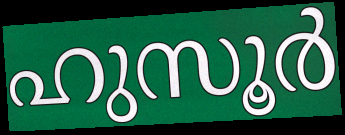
ഹുസൂർ